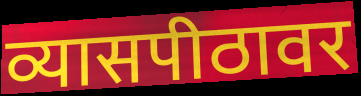
व्यासपीठावर